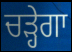
ਚੜ੍ਹੇਗਾ